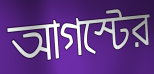
আগস্টের